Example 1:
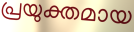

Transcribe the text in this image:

പ്രയുക്തമായ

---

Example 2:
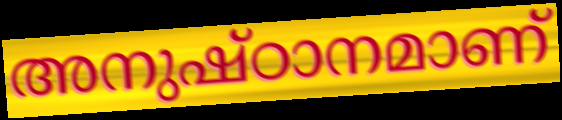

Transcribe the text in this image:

അനുഷ്ഠാനമാണ്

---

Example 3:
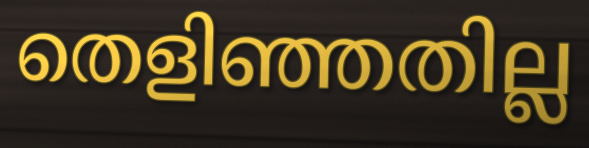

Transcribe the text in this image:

തെളിഞ്ഞതില്ല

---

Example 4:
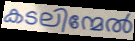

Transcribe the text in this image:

കടലിന്മേൽ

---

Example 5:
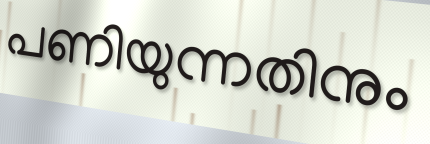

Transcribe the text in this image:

പണിയുന്നതിനും